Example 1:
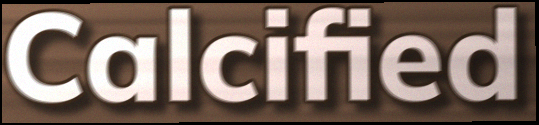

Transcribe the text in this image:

Calcified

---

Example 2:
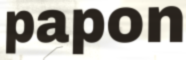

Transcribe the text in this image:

papon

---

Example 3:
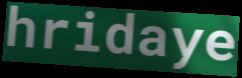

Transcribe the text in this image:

hridaye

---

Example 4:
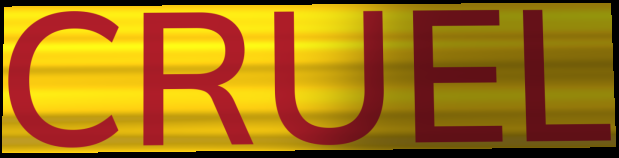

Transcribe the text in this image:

CRUEL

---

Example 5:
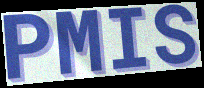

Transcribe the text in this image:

PMIS